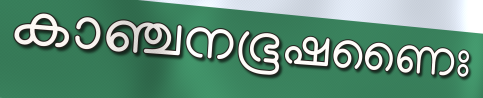
കാഞ്ചനഭൂഷണൈഃ